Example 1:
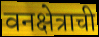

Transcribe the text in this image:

वनक्षेत्राची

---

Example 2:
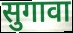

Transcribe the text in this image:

सुगावा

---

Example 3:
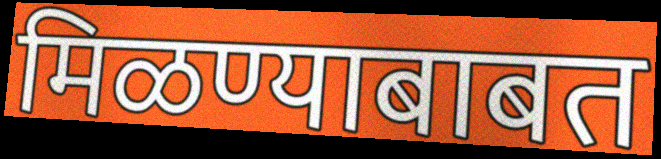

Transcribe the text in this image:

मिळण्याबाबत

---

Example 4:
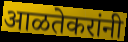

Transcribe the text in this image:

आळतेकरांनी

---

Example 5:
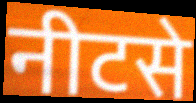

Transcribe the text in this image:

नीटसे